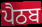
ਪੈਠਬ